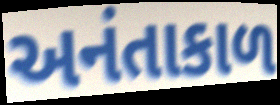
અનંતાકાળ